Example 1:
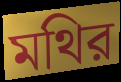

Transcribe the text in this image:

মথির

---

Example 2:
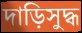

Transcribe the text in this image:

দাড়িসুদ্ধ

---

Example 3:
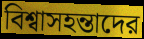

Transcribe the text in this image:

বিশ্বাসহন্তাদের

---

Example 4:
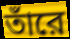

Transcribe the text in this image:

তাঁরে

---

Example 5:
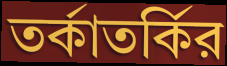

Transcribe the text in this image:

তর্কাতর্কির